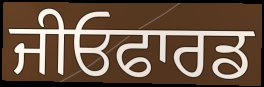
ਜੀਓਫਾਰਡ